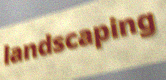
landscaping